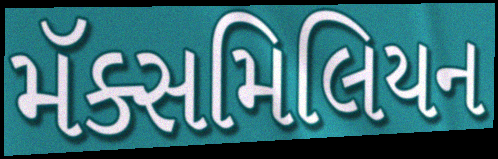
મૅક્સમિલિયન